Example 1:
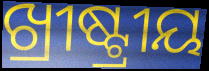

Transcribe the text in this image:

ଖ୍ରୀଷ୍ଟ୍ରୀୟ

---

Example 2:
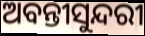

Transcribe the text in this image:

ଅବନ୍ତୀସୁନ୍ଦରୀ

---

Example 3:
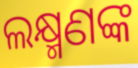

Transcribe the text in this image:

ଲକ୍ଷ୍ମଣଙ୍କ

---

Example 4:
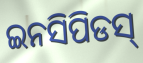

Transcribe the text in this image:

ଇନସିପିଡସ୍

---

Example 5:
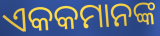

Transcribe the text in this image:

ଏକକମାନଙ୍କ